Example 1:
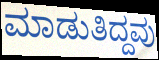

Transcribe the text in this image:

ಮಾಡುತಿದ್ದವು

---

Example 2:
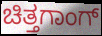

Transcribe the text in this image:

ಚಿತ್ತಗಾಂಗ್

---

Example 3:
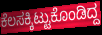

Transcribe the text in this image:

ಕೆಲಸಕ್ಕಿಟ್ಟುಕೊಂಡಿದ್ದ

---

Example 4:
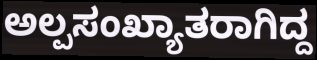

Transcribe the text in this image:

ಅಲ್ಪಸಂಖ್ಯಾತರಾಗಿದ್ದ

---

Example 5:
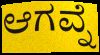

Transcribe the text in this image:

ಆಗವ್ನೆ